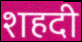
शहदी